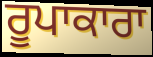
ਰੂਪਾਕਾਰਾ